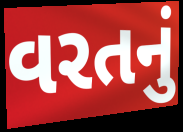
વરતનું